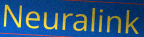
Neuralink